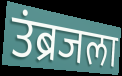
उंब्रजला